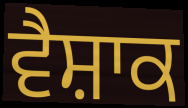
ਵੈਸ਼ਾਕ